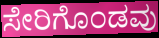
ಸೇರಿಗೊಂಡವು